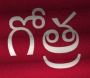
గోత్ర